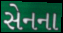
સેનના